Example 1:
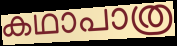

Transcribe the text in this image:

കഥാപാത്ര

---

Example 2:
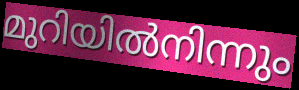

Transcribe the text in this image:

മുറിയിൽനിന്നും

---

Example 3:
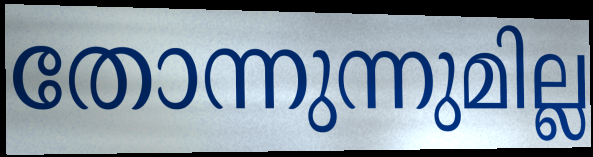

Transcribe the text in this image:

തോന്നുന്നുമില്ല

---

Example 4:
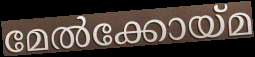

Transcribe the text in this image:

മേൽക്കോയ്മ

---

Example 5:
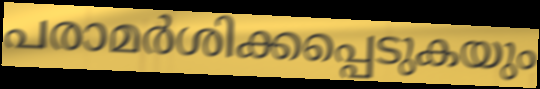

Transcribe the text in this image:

പരാമർശിക്കപ്പെടുകയും